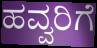
ಹವ್ವರಿಗೆ